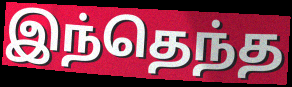
இந்தெந்த